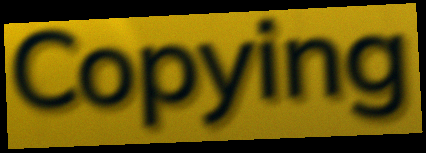
Copying